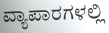
ವ್ಯಾಪಾರಗಳಲ್ಲಿ